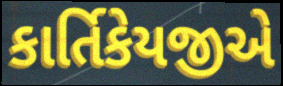
કાર્તિકેયજીએ